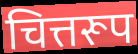
चित्तरूप